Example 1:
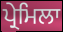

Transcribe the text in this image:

ਪ੍ਰੇਮਿਲਾ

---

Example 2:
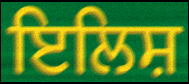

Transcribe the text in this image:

ਇਲਿਸ਼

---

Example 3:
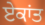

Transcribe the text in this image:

ਏਕਾਂਤ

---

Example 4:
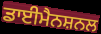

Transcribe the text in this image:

ਡਾਈਮੈਨਸ਼ਨਲ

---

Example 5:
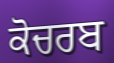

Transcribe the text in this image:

ਕੋਚਰਬ